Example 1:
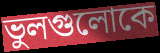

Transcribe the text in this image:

ভুলগুলোকে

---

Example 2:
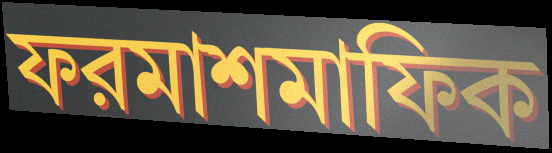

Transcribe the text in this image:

ফরমাশমাফিক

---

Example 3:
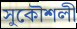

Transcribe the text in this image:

সুকৌশলী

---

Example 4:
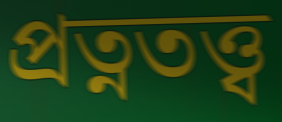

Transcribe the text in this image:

প্রত্নতত্ত্ব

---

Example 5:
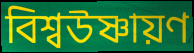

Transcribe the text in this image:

বিশ্বউষ্ণায়ণ